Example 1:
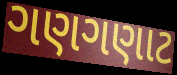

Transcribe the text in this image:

ગણગણાટ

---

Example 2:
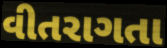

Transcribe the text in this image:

વીતરાગતા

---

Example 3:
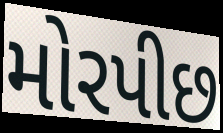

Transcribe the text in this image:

મોરપીછ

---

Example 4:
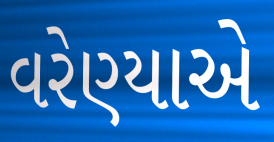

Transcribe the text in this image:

વરેણ્યાએ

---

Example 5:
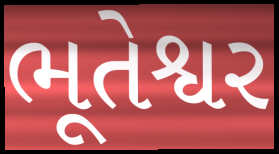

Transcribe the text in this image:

ભૂતેશ્વર